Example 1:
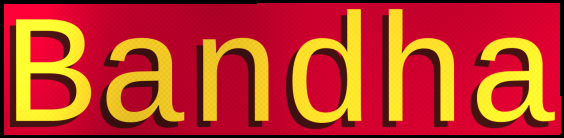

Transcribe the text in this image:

Bandha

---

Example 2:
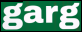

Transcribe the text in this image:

garg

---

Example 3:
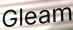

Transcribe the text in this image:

Gleam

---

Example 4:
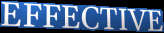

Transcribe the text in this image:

EFFECTIVE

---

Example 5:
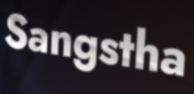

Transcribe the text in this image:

Sangstha